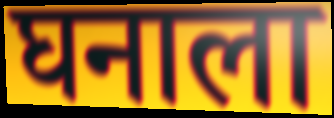
घनाला